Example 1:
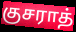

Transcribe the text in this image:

குசராத்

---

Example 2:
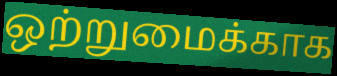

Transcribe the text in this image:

ஒற்றுமைக்காக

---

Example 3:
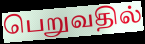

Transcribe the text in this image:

பெறுவதில்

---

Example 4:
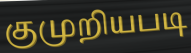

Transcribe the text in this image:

குமுறியபடி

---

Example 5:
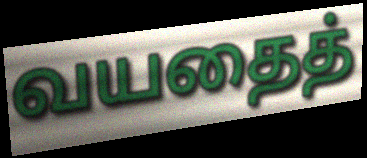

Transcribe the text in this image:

வயதைத்